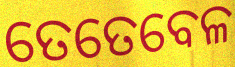
ତେତେବେଳ